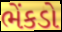
ભેંકડો